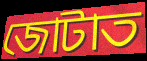
জোটাত